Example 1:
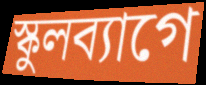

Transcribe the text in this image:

স্কুলব্যাগে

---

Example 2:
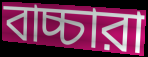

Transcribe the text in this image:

বাচ্চারা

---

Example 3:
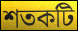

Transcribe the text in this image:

শতকটি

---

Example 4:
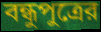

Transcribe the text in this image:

বন্ধুপুত্রের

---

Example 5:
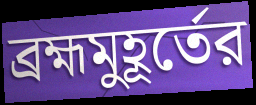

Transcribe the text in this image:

ব্রহ্মমুহূর্তের